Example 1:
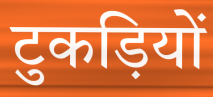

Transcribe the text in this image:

टुकड़ियों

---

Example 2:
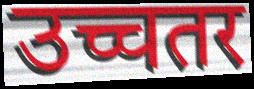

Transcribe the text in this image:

उच्चतर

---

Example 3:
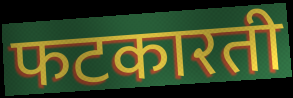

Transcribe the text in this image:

फटकारती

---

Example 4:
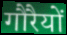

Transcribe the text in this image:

गौरैयों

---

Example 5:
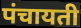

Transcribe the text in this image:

पंचायती